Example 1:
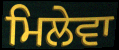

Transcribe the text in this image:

ਮਿਲੇਵਾ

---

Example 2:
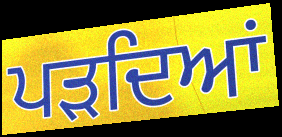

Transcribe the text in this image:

ਪੜਦਿਆਂ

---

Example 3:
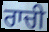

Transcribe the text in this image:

ਰਾਚੀ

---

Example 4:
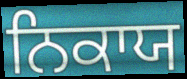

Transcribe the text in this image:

ਨਿਕਾਯ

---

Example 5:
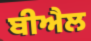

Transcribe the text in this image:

ਬੀਐਲ